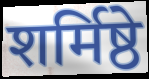
शर्मिष्ठे